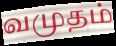
வமுதம்